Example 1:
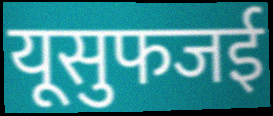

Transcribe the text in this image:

यूसुफजई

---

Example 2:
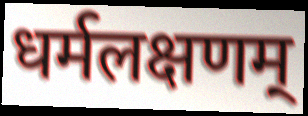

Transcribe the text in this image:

धर्मलक्षणम्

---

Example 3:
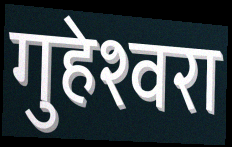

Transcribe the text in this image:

गुहेश्वरा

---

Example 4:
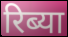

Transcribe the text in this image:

रिब्या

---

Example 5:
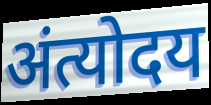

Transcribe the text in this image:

अंत्योदय